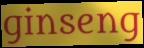
ginseng